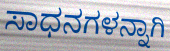
ಸಾಧನಗಳನ್ನಾಗಿ